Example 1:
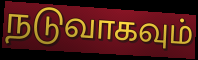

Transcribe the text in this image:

நடுவாகவும்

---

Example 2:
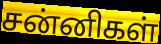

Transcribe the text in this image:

சன்னிகள்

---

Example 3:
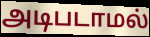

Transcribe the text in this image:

அடிபடாமல்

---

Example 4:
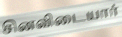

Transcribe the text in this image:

சினவிடையார்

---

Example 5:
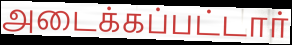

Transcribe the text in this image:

அடைக்கப்பட்டார்